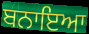
ਬਨਾਇਆ